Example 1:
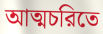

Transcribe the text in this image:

আত্মচরিতে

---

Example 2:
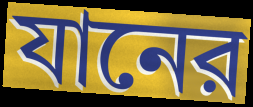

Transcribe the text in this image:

যানের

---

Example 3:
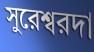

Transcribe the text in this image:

সুরেশ্বরদা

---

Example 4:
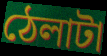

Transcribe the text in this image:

ঠেলাটা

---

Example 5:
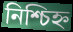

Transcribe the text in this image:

নিশ্চিহ্ন